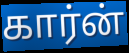
கார்ன்